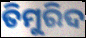
ତିମୁରିଦ